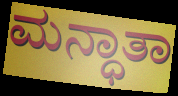
ಮನ್ಧಾತಾ